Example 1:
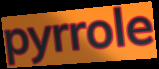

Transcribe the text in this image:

pyrrole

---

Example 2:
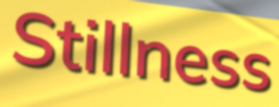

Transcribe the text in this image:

Stillness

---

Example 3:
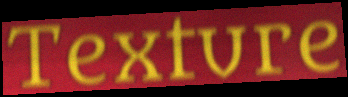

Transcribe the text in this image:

Texture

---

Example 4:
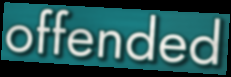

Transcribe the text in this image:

offended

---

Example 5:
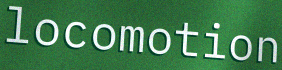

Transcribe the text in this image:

locomotion